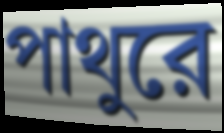
পাথুরে